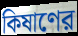
কিষাণের